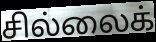
சில்லைக்